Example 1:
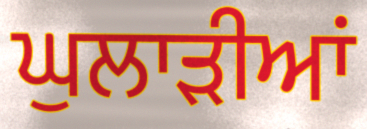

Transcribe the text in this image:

ਘੁਲਾੜੀਆਂ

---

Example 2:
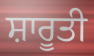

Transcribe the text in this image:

ਸ਼ਾਰੂਤੀ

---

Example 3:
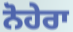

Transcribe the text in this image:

ਨੋਹੇਰਾ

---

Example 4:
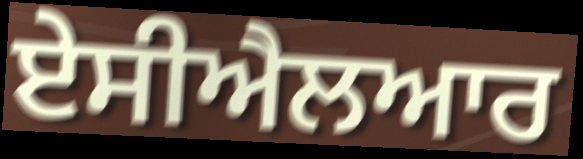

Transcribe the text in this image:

ਏਸੀਐਲਆਰ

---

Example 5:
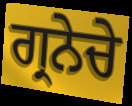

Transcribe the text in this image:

ਗ੍ਰਨੇਚੇ